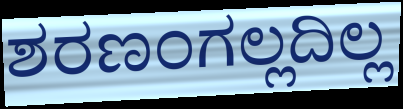
ಶರಣಂಗಲ್ಲದಿಲ್ಲ